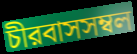
চীরবাসসম্বল